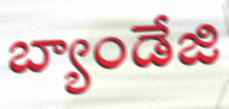
బ్యాండేజి